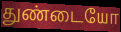
துண்டையோ